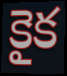
కైక